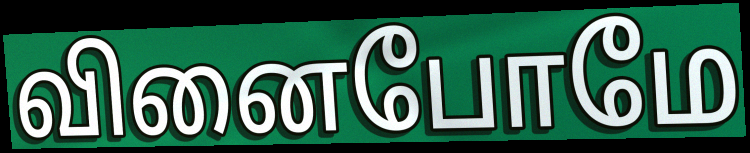
வினைபோமே